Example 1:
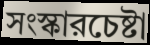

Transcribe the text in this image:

সংস্কারচেষ্টা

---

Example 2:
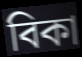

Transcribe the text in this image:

বিকা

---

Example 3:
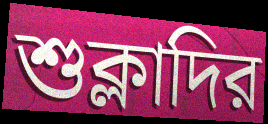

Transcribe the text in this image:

শুক্লাদির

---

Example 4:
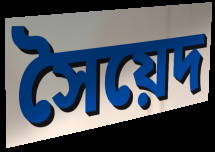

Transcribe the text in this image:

সৈয়েদ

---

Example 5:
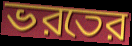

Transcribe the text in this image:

ভরতের